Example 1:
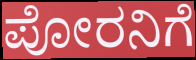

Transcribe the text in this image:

ಪೋರನಿಗೆ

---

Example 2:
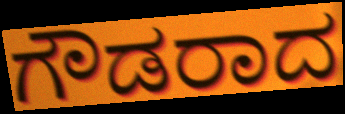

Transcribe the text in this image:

ಗೌಡರಾದ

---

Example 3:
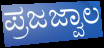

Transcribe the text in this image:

ಪ್ರಜಜ್ವಾಲ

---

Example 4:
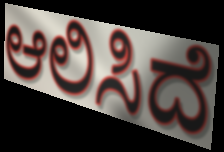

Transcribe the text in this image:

ಆಲಿಸಿದೆ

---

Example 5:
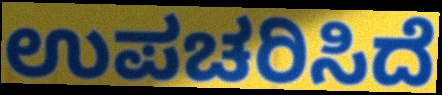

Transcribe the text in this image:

ಉಪಚರಿಸಿದೆ